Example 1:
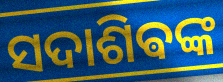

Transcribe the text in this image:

ସଦାଶିଵଙ୍କ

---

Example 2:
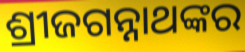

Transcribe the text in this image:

ଶ୍ରୀଜଗନ୍ନାଥଙ୍କର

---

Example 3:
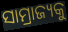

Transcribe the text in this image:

ସାମ୍ରାଜ୍ୟକୁ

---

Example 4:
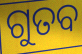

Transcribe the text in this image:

ଗୁତବ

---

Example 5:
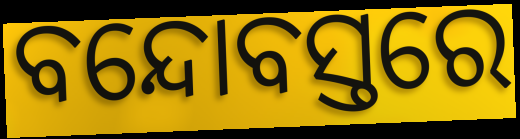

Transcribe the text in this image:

ବନ୍ଦୋବସ୍ତରେ